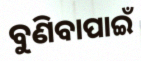
ବୁଣିବାପାଇଁ